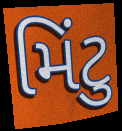
મિંટુ